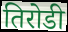
तिरोडी